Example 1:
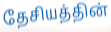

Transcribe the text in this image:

தேசியத்தின்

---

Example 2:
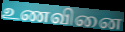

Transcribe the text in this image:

உணவினை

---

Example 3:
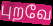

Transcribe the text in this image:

புறவே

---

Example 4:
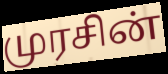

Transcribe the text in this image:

முரசின்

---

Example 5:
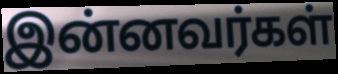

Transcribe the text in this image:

இன்னவர்கள்